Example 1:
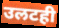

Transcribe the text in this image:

उलटही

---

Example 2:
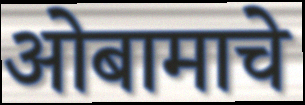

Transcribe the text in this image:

ओबामाचे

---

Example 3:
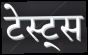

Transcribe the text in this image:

टेस्ट्स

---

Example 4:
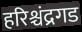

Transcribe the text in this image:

हरिश्चंद्रगड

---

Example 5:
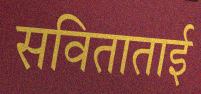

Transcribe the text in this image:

सविताताई